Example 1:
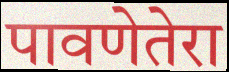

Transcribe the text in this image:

पावणेतेरा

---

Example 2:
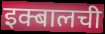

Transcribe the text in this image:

इक्बालची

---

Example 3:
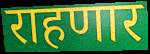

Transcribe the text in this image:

राहणार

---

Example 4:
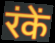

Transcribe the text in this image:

रंकें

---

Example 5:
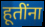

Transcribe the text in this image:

हूतींना